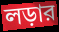
লড়ার